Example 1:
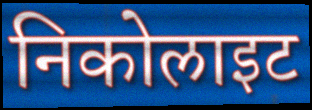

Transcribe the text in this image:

निकोलाइट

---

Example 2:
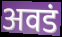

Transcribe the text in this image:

अवडं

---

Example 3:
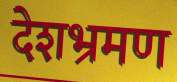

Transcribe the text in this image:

देशभ्रमण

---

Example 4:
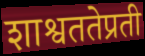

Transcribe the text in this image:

शाश्वततेप्रती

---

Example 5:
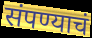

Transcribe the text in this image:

संपण्याचं